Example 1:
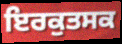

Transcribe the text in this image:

ਇਰਕੁਤਸਕ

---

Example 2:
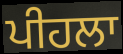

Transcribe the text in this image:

ਪੀਹਲਾ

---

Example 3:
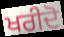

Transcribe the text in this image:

ਖਰੀਦੋ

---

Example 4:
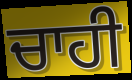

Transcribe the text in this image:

ਚਾਹੀ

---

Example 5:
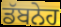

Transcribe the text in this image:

ਡੱਬਨੇਹ